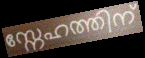
സ്നേഹത്തിന്